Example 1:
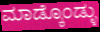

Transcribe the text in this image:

ಮಾಡ್ಕೊಂಡ್ಳು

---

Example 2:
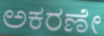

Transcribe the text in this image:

ಅಕರಣೇ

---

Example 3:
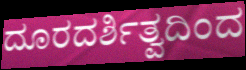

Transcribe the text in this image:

ದೂರದರ್ಶಿತ್ವದಿಂದ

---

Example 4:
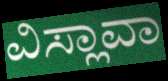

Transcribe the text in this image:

ವಿಸ್ಲಾವಾ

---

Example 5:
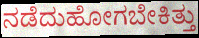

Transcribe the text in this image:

ನಡೆದುಹೋಗಬೇಕಿತ್ತು